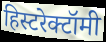
हिस्टरेक्टॉमी